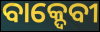
ବାକ୍ଦେବୀ